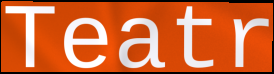
Teatr